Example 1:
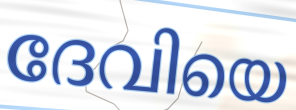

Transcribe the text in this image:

ദേവിയെ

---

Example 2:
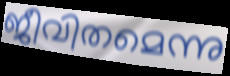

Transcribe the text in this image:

ജീവിതമെന്നു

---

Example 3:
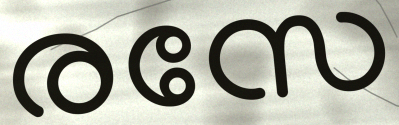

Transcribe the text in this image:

രസേ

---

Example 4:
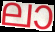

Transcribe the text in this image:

ലാ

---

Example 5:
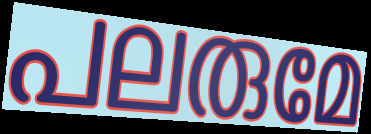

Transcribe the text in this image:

പലരുമേ